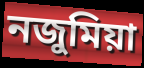
নজুমিয়া